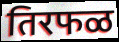
तिरफळ